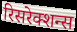
रिसरेक्शन्स